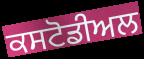
ਕਸਟੋਡੀਅਲ